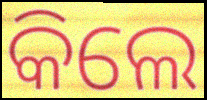
କିଲେ